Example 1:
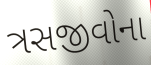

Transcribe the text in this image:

ત્રસજીવોના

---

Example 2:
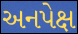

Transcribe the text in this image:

અનપેક્ષ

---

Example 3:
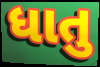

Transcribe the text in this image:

ધાતુ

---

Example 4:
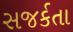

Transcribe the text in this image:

સજર્કતા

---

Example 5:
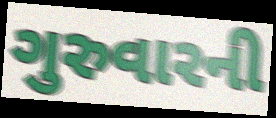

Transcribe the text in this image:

ગુરુવારની